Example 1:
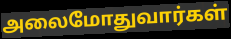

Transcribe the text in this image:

அலைமோதுவார்கள்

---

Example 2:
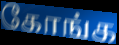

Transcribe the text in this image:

கோங்க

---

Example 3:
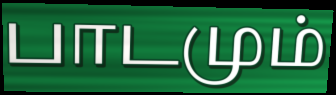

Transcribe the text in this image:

பாடமும்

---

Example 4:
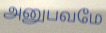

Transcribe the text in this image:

அனுபவமே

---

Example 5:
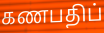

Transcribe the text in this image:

கணபதிப்